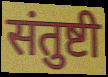
संतुष्टी